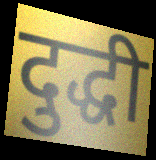
दुद्धी